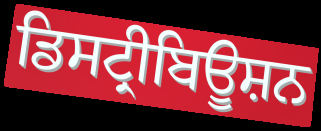
ਡਿਸਟ੍ਰੀਬਿਊਸ਼ਨ